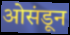
ओसंडून